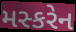
મસ્કરેન